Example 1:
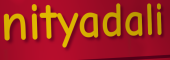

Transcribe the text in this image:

nityadali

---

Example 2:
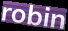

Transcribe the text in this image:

robin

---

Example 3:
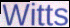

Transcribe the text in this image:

Witts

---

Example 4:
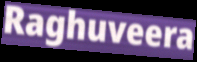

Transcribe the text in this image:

Raghuveera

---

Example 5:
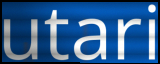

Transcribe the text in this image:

utari